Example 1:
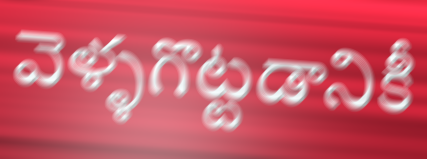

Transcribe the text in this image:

వెళ్ళగొట్టడానికీ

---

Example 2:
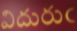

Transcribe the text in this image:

విదురుఁ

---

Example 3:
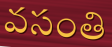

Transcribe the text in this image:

వసంతి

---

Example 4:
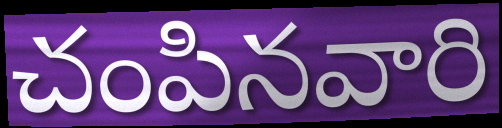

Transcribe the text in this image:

చంపినవారి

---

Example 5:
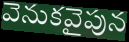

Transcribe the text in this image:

వెనుకవైపున